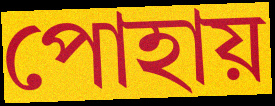
পোহায়